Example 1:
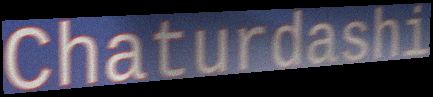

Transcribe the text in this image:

Chaturdashi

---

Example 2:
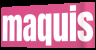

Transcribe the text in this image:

maquis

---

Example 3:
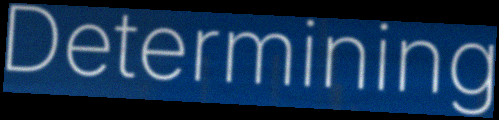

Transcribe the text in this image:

Determining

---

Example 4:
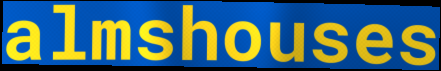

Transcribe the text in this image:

almshouses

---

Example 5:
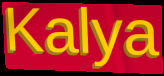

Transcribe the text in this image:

Kalya